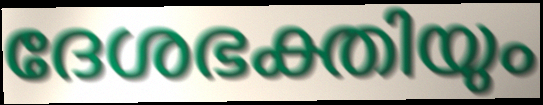
ദേശഭക്തിയും